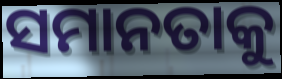
ସମାନତାକୁ